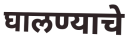
घालण्याचे